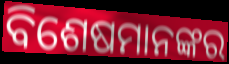
ବିଶେଷମାନଙ୍କର